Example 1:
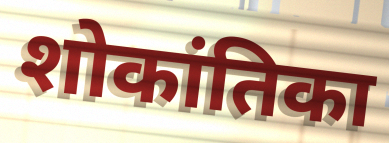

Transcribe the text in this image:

शोकांतिका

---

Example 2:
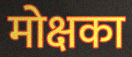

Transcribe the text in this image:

मोक्षका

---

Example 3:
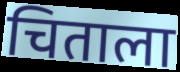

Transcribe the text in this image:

चिताला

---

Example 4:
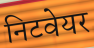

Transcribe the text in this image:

निटवेयर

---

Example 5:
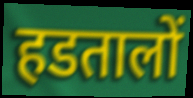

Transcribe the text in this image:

हडतालों